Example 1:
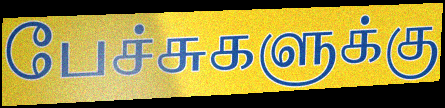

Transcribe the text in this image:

பேச்சுகளுக்கு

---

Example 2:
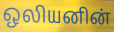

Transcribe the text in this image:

ஒலியனின்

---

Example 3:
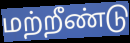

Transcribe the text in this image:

மற்றீண்டு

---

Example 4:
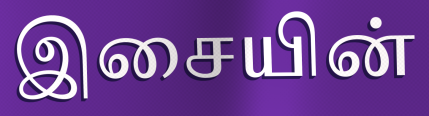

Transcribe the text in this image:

இசையின்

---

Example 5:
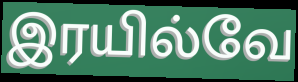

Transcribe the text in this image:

இரயில்வே